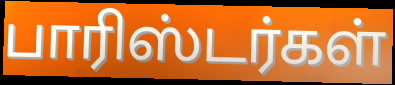
பாரிஸ்டர்கள்